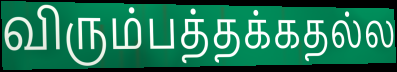
விரும்பத்தக்கதல்ல